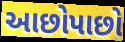
આછોપાછો